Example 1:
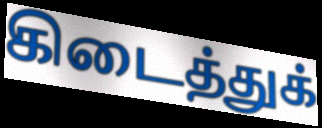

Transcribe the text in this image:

கிடைத்துக்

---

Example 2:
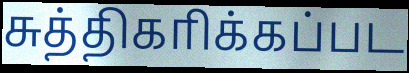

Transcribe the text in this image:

சுத்திகரிக்கப்பட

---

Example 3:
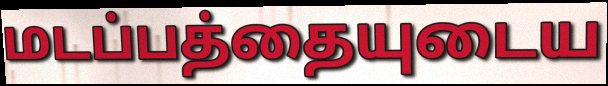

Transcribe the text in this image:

மடப்பத்தையுடைய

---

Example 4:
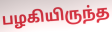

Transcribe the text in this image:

பழகியிருந்த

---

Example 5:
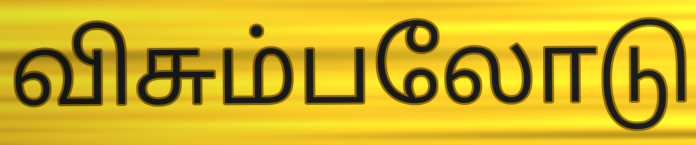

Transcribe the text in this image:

விசும்பலோடு